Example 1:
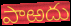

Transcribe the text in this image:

పాఱదు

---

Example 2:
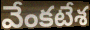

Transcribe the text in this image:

వేంకటేశ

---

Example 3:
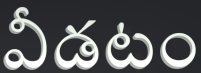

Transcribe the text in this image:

వీడటం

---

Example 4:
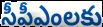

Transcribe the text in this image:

సీపీఎంలకు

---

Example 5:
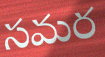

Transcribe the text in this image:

సమర